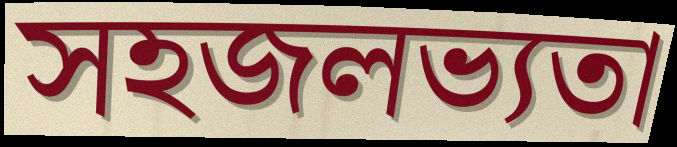
সহজলভ্যতা